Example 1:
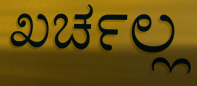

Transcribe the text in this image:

ಖರ್ಚಲ್ಲ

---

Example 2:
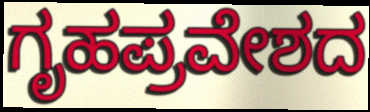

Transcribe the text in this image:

ಗೃಹಪ್ರವೇಶದ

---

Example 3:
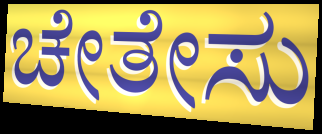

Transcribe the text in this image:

ಚೇತೇಸು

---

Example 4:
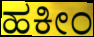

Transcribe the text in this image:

ಹಕೀಂ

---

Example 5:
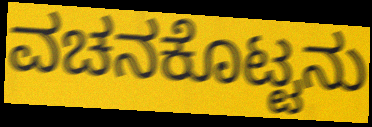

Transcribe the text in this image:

ವಚನಕೊಟ್ಟನು